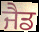
ਜੈਡ